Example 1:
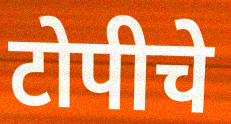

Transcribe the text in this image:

टोपीचे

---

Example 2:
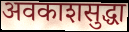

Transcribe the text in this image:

अवकाशसुद्धा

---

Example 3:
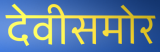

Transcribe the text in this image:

देवीसमोर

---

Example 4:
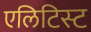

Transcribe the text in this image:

एलिटिस्ट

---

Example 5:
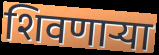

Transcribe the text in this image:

शिवणाऱ्या